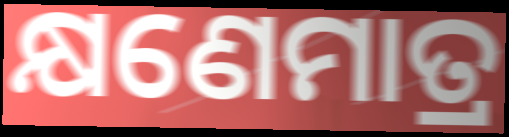
କ୍ଷଣେମାତ୍ର